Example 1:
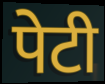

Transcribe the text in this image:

पेटी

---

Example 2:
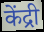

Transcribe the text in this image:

केंद्री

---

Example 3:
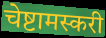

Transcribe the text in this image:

चेष्टामस्करी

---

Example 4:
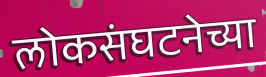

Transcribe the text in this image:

लोकसंघटनेच्या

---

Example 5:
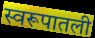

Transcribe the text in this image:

स्वरूपातली